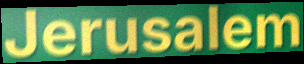
Jerusalem